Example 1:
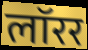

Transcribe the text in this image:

लॉरर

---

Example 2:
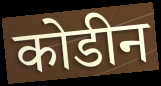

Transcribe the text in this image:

कोडीन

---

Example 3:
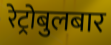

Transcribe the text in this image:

रेट्रोबुलबार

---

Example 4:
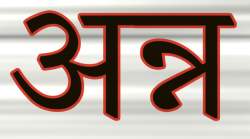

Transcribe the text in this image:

अन्न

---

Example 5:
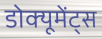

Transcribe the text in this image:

डोक्यूमेंट्स